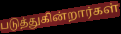
படுத்துகின்றார்கள்